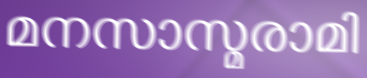
മനസാസ്മരാമി